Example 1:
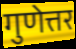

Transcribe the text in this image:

गुणेत्तर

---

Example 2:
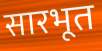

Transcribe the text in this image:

सारभूत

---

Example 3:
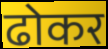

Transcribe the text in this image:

ढोकर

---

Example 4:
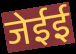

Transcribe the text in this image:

जेईई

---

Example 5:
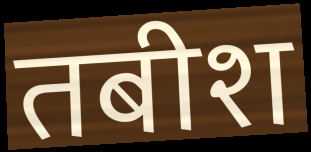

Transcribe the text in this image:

तबीश